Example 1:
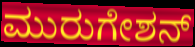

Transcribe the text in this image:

ಮುರುಗೇಶನ್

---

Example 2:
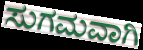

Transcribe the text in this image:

ಸುಗಮವಾಗಿ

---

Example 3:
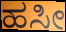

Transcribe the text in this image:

ಹಸೀ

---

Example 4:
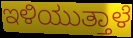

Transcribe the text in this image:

ಇಳಿಯುತ್ತಾಳೆ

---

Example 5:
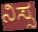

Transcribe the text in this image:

ನಿಸ್ಸ